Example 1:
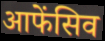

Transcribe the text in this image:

आफेंसिव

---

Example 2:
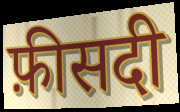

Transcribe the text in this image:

फ़ीसदी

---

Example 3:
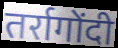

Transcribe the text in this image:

तर्रागोंदी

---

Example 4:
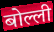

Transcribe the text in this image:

बोल्ली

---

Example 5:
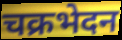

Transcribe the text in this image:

चक्रभेदन